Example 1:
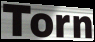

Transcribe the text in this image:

Torn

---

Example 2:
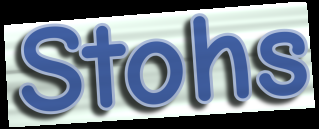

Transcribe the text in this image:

Stohs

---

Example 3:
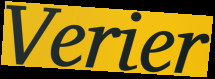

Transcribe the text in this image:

Verier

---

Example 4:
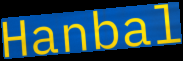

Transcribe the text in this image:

Hanbal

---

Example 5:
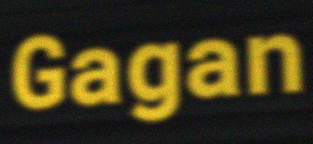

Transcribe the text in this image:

Gagan